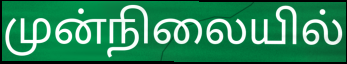
முன்நிலையில்